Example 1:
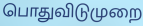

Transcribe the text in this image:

பொதுவிடுமுறை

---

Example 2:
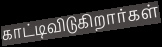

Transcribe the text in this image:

காட்டிவிடுகிறார்கள்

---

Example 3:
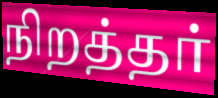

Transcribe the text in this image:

நிறத்தர்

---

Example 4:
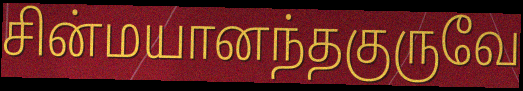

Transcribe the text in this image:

சின்மயானந்தகுருவே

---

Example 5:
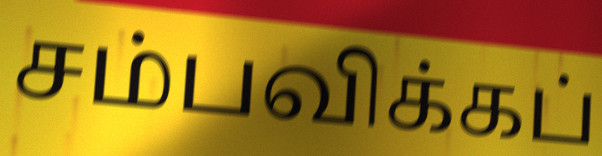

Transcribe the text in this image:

சம்பவிக்கப்